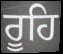
ਰੂਹਿ